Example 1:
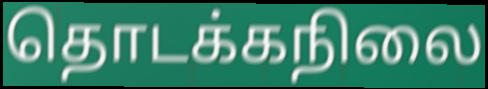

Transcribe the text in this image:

தொடக்கநிலை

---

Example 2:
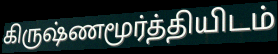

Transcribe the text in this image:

கிருஷ்ணமூர்த்தியிடம்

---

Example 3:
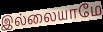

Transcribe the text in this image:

இல்லையாமே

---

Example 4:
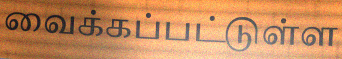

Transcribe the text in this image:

வைக்கப்பட்டுள்ள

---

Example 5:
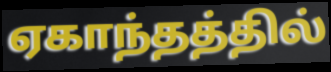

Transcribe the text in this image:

ஏகாந்தத்தில்